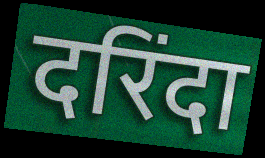
दरिंदा